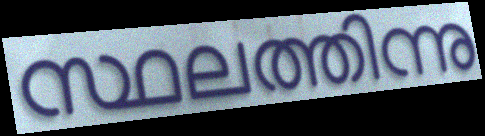
സ്ഥലത്തിന്നു